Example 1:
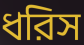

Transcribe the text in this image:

ধরিস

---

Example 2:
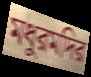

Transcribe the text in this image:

মধুরমদির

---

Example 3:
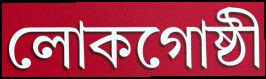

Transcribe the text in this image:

লোকগোষ্ঠী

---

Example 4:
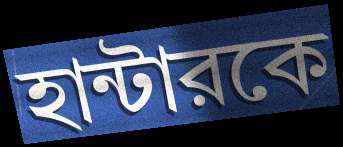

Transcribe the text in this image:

হান্টারকে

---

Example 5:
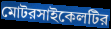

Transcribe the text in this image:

মোটরসাইকেলটির